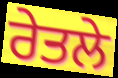
ਰੇਤਲੇ